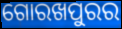
ଗୋରଖପୁରର